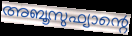
അബൂസുഫ്യാന്റെ